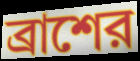
ব্রাশের